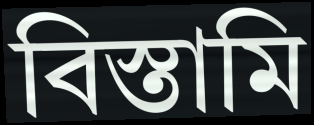
বিস্তামি